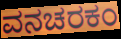
ವನಚರಕಂ